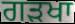
ਗੜਖਾ